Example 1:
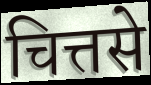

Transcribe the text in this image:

चित्तसे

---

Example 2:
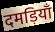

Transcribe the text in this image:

दमड़ियाँ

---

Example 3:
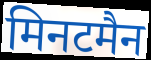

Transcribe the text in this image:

मिनटमैन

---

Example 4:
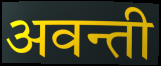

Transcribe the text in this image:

अवन्ती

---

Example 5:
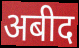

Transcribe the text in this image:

अबीद